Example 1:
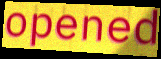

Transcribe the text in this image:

opened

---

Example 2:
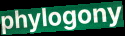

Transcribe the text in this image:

phylogony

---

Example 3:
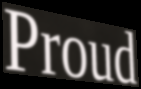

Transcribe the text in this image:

Proud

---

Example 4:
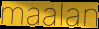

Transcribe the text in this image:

maalan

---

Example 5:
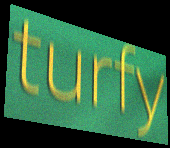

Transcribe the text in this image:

turfy